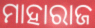
ମାହାରାଜ